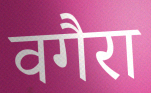
वगैरा